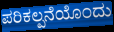
ಪರಿಕಲ್ಪನೆಯೊಂದು